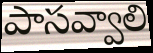
పాసవ్వాలి